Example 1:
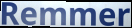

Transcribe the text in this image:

Remmer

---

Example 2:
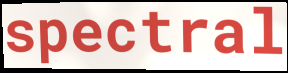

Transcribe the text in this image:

spectral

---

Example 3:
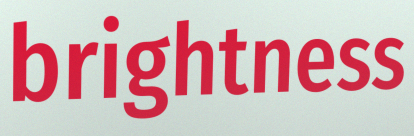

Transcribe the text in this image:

brightness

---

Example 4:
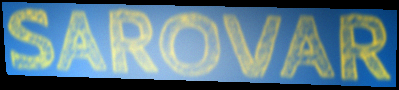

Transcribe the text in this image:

SAROVAR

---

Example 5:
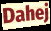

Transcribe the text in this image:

Dahej